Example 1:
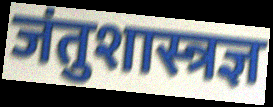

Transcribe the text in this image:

जंतुशास्त्रज्ञ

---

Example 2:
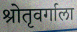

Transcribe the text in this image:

श्रोतृवर्गाला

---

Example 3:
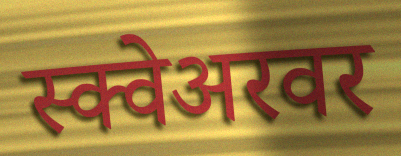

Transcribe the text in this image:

स्क्वेअरवर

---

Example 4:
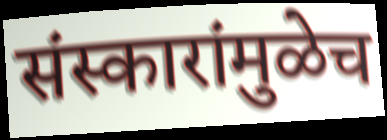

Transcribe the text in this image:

संस्कारांमुळेच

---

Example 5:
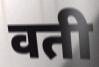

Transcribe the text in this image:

वती